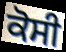
ਕੋਸੀ